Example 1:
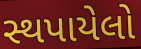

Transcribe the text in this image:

સ્થપાયેલો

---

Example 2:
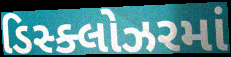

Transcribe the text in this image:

ડિસ્ક્લોઝરમાં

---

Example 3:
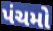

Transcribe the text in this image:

પંચમો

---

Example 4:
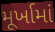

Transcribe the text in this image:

મૂર્ખામાં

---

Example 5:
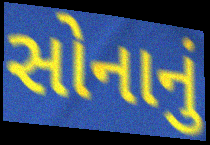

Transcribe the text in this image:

સોનાનું